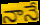
నానే